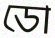
ডো